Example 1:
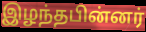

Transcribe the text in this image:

இழந்தபின்னர்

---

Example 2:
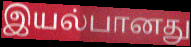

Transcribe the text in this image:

இயல்பானது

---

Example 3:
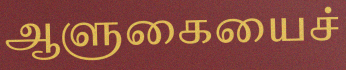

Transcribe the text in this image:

ஆளுகையைச்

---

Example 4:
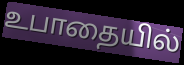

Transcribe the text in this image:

உபாதையில்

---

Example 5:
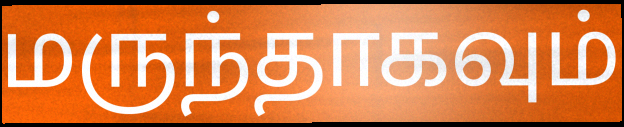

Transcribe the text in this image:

மருந்தாகவும்